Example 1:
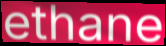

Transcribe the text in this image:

ethane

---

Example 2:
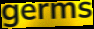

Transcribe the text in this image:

germs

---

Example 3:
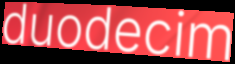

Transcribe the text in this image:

duodecim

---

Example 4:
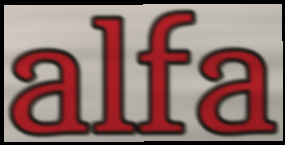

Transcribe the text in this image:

alfa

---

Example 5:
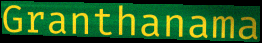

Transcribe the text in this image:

Granthanama